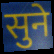
सुने